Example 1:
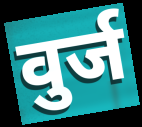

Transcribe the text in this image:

वुर्ज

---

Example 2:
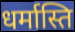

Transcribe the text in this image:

धर्मास्ति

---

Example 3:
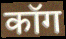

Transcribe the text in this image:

कॉग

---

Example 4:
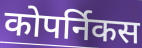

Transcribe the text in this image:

कोपर्निकस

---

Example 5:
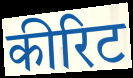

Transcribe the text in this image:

कीरिट